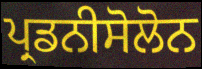
ਪ੍ਰਡਨੀਸੋਲੋਨ